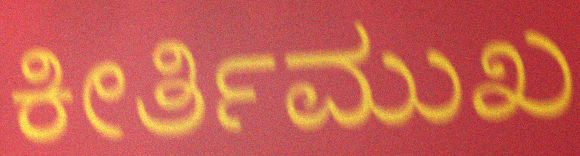
ಕೀರ್ತಿಮುಖ